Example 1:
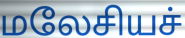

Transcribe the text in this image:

மலேசியச்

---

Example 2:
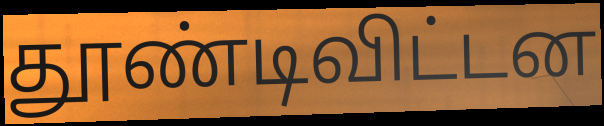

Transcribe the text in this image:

தூண்டிவிட்டன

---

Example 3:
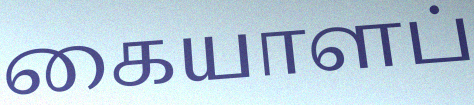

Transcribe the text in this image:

கையாளப்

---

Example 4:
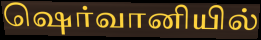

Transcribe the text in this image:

ஷெர்வானியில்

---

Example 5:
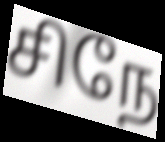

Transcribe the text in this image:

சிநே